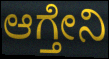
ಆಗ್ತೇನಿ